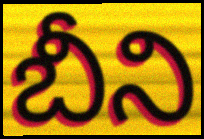
బీని